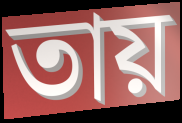
তায়